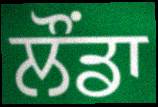
ਲੌਂਡਾ